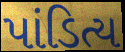
પાંડિત્ય